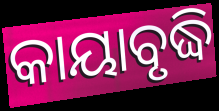
କାୟାବୃଦ୍ଧି